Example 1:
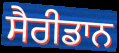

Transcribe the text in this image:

ਸੈਰੀਡਾਨ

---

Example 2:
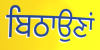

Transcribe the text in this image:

ਬਿਠਾਉਣਾਂ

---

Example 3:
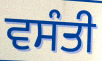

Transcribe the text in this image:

ਵਸੰਤੀ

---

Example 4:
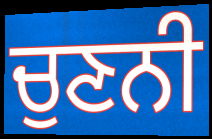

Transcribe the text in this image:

ਚੁਣਨੀ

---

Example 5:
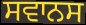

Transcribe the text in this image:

ਸਵਾਨਸ